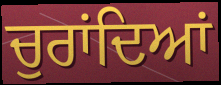
ਚੁਰਾਂਦਿਆਂ